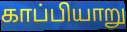
காப்பியாறு